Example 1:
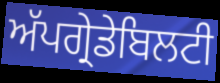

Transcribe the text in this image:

ਅੱਪਗ੍ਰੇਡੇਬਿਲਟੀ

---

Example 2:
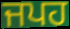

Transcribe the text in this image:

ਜਪਹ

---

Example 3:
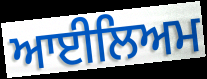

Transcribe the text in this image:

ਆਈਲਿਅਮ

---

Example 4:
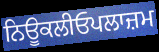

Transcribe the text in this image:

ਨਿਊਕਲੀਓਪਲਾਜ਼ਮ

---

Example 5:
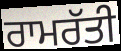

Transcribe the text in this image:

ਰਾਮਰੱਤੀ